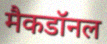
मैकडॉनल